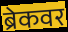
ब्रेकवर